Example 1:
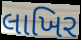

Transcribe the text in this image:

લાખિર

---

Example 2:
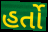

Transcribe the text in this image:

હર્તો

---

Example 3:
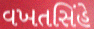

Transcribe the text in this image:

વખતસિંહે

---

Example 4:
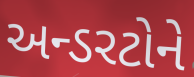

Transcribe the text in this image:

અન્ડરટોને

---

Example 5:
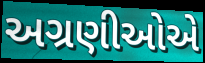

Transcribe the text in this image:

અગ્રણીઓએ